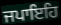
ਜਪਾਇਹਿ